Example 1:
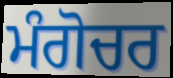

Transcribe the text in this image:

ਮੰਗੋਚਰ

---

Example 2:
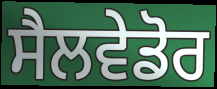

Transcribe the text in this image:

ਸੈਲਵੇਡੋਰ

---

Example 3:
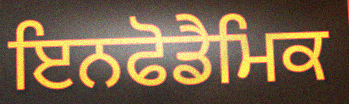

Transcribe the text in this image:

ਇਨਫੋਡੈਮਿਕ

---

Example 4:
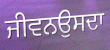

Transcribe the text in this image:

ਜੀਵਨਉਸਦਾ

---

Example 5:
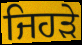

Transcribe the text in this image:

ਜਿਹਡ਼ੇ